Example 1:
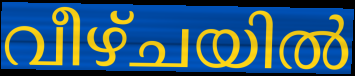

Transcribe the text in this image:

വീഴ്ചയിൽ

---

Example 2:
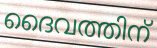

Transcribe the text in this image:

ദൈവത്തിന്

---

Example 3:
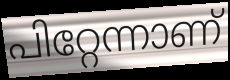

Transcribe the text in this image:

പിറ്റേന്നാണ്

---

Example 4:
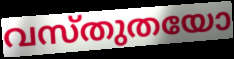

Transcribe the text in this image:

വസ്തുതയോ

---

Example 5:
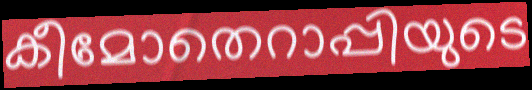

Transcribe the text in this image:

കീമോതെറാപ്പിയുടെ